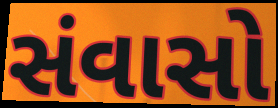
સંવાસો